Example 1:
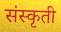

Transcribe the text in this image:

संस्कृती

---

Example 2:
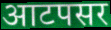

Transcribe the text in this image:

आटपसर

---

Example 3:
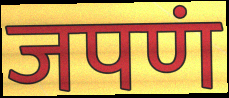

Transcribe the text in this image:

जपणं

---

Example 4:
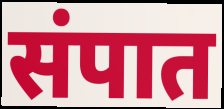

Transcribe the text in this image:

संपात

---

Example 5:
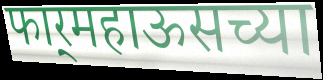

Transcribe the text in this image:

फार्महाऊसच्या